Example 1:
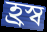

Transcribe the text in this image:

হ্রস্ব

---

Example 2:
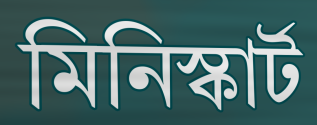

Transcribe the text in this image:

মিনিস্কার্ট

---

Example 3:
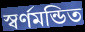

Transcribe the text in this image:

স্বর্ণমন্ডিত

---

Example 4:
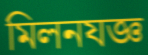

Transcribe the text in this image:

মিলনযজ্ঞ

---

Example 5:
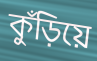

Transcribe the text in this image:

কুঁড়িয়ে